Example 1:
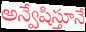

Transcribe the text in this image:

అన్వేషిస్తూనే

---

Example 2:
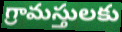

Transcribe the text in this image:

గ్రామస్తులకు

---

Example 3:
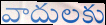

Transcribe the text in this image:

వాదులకు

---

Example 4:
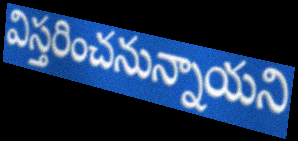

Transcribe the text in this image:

విస్తరించనున్నాయని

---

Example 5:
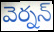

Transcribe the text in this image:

వెర్నన్